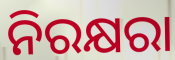
ନିରକ୍ଷରା